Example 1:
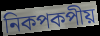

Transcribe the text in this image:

নিকপকপীয়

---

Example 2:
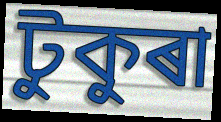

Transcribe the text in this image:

টুকুৰা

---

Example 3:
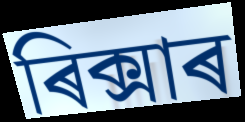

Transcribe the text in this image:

ৰিক্সাৰ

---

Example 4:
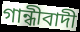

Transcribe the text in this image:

গান্ধীবাদী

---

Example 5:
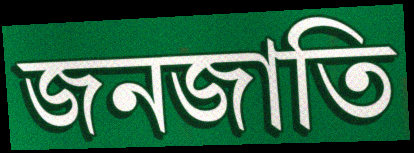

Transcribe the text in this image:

জনজাতি